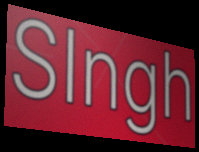
SIngh